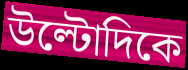
উল্টোদিকে